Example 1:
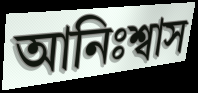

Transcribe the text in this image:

আনিঃশ্বাস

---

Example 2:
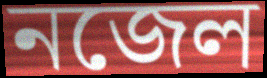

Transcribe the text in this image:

নজেল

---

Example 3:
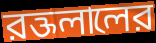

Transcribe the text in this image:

রক্তলালের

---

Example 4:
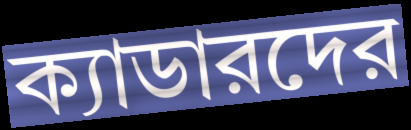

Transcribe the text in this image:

ক্যাডারদের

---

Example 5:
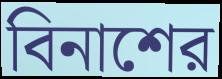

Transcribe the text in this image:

বিনাশের